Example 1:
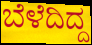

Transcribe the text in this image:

ಬೆಳೆದಿದ್ದ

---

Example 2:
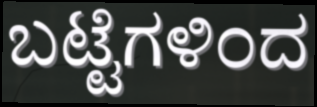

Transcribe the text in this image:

ಬಟ್ಟೆಗಳಿಂದ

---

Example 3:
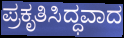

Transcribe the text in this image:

ಪ್ರಕೃತಿಸಿದ್ಧವಾದ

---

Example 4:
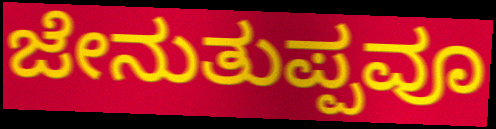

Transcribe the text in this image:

ಜೇನುತುಪ್ಪವೂ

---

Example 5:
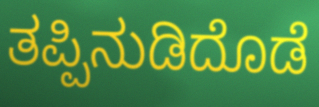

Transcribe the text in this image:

ತಪ್ಪಿನುಡಿದೊಡೆ